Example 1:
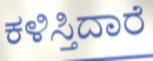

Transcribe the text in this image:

ಕಳಿಸ್ತಿದಾರೆ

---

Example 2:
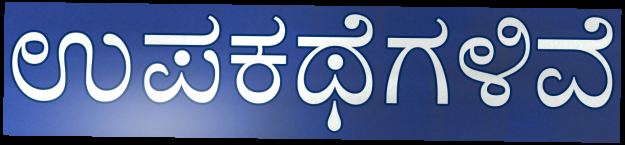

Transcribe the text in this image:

ಉಪಕಥೆಗಳಿವೆ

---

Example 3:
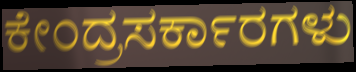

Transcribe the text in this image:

ಕೇಂದ್ರಸರ್ಕಾರಗಳು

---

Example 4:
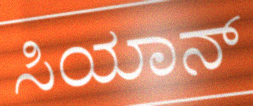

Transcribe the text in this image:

ಸಿಯಾನ್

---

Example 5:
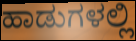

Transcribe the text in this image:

ಹಾಡುಗಳಲ್ಲಿ